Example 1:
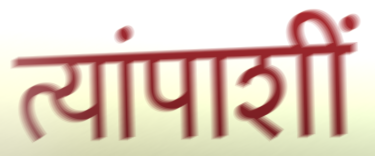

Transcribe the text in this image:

त्यांपाशीं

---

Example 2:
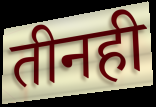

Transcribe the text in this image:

तीनही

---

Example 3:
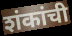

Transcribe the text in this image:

शंकांची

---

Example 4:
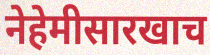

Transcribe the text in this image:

नेहेमीसारखाच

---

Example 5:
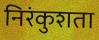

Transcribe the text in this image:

निरंकुशता